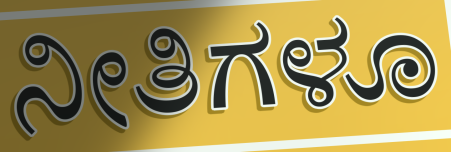
ನೀತಿಗಳೂ